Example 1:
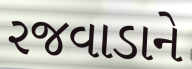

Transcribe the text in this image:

રજવાડાને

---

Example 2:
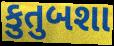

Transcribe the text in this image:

કુતુબશા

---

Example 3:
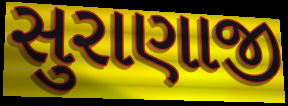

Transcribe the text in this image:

સુરાણાજી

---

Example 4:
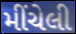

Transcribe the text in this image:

મીંચેલી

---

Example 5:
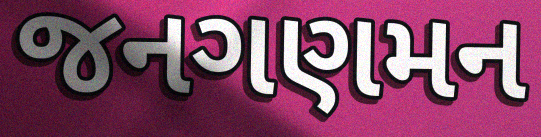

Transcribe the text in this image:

જનગણમન